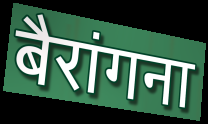
बैरांगना